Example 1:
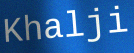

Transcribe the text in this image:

Khalji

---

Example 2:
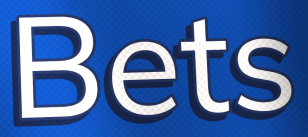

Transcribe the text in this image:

Bets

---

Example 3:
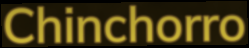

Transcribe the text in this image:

Chinchorro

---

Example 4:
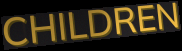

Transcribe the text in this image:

CHILDREN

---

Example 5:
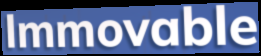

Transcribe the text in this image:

Immovable